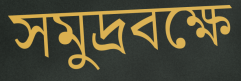
সমুদ্রবক্ষে